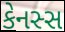
કેનસ્સ